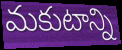
మకుటాన్ని